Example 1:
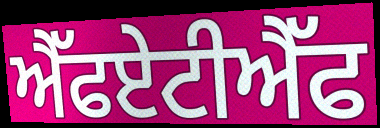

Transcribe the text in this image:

ਐੱਫਏਟੀਐੱਫ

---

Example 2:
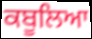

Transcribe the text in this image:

ਕਬੂਲਿਆ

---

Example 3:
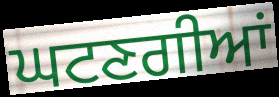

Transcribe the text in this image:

ਘਟਣਗੀਆਂ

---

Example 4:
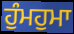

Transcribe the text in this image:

ਹੁੰਮਹੁਮਾ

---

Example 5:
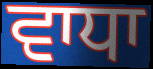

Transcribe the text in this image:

ਵਾਧਾ